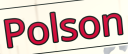
Polson